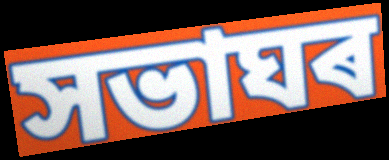
সভাঘৰ